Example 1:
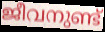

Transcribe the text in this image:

ജീവനുണ്ട്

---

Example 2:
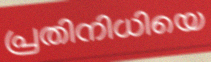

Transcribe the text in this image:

പ്രതിനിധിയെ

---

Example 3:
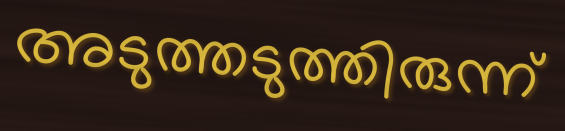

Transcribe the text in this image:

അടുത്തടുത്തിരുന്ന്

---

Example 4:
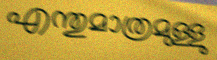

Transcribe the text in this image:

എന്തുമാത്രമുള്ളു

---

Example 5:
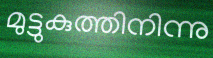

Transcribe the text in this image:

മുട്ടുകുത്തിനിന്നു